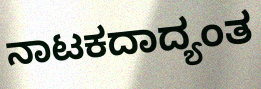
ನಾಟಕದಾದ್ಯಂತ